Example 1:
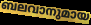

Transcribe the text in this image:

ബലവാനുമായ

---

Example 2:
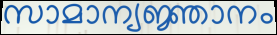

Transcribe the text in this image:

സാമാന്യജ്ഞാനം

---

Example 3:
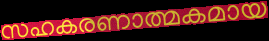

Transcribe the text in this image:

സഹകരണാത്മകമായ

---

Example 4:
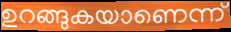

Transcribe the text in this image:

ഉറങ്ങുകയാണെന്ന്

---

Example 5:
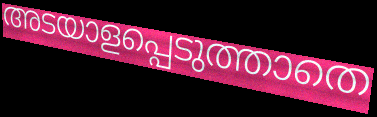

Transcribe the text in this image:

അടയാളപ്പെടുത്താതെ